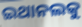
ଇଥାନଲକୁ